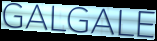
GALGALE